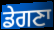
ਡੇਗਣਾ